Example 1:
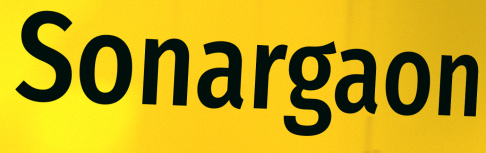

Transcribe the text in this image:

Sonargaon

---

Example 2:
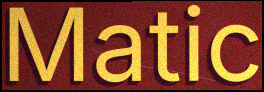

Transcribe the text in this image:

Matic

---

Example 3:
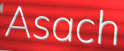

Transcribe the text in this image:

Asach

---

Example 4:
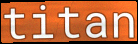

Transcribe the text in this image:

titan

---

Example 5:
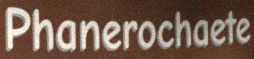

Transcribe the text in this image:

Phanerochaete